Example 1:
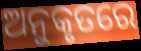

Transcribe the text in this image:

ଅନୁକୃତରେ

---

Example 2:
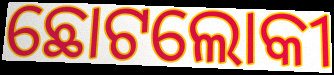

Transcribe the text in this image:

ଛୋଟଲୋକୀ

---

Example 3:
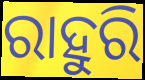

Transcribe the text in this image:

ରାହୁରି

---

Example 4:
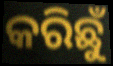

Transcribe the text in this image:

କରିଛୁଁ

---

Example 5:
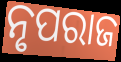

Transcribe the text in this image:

ନୃପରାଜ